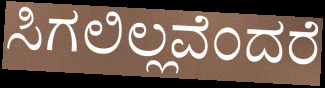
ಸಿಗಲಿಲ್ಲವೆಂದರೆ